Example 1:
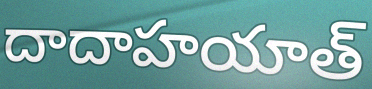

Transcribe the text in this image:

దాదాహయాత్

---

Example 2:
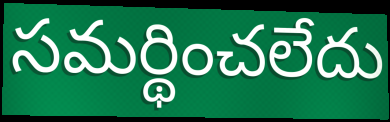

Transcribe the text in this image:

సమర్థించలేదు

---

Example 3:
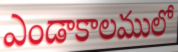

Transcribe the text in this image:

ఎండాకాలములో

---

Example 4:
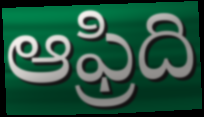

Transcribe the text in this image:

ఆఫ్రిది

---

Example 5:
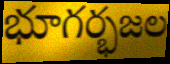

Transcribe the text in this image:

భూగర్భజల